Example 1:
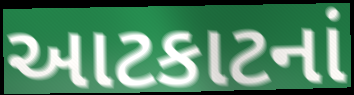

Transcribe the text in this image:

આટકાટનાં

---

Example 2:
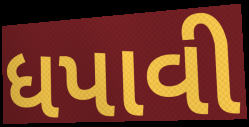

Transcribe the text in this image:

ધપાવી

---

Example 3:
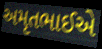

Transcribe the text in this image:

અમૃતભાઈએ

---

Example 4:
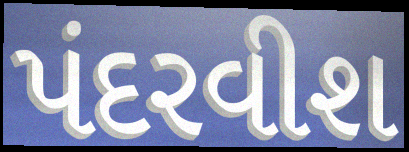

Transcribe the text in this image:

પંદરવીશ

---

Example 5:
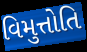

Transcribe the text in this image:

વિમુત્તોતિ